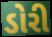
ડોરી